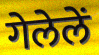
गेलेलें